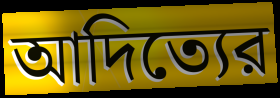
আদিত্যের